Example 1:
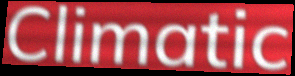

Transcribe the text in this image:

Climatic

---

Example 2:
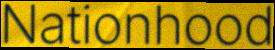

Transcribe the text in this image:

Nationhood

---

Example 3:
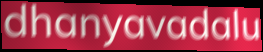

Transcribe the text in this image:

dhanyavadalu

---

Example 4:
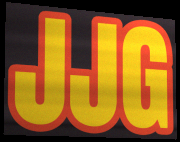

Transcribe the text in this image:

JJG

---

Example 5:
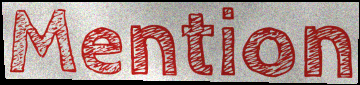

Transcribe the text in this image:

Mention